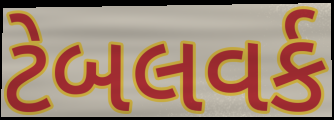
ટેબલવર્ક